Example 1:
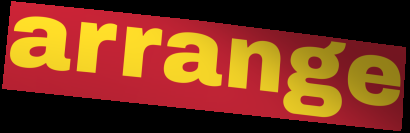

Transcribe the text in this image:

arrange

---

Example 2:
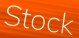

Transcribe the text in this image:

Stock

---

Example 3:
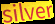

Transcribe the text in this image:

silver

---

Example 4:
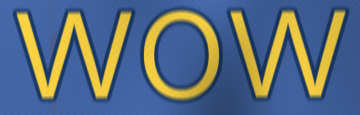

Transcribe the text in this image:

wow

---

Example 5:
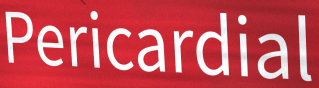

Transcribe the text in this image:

Pericardial